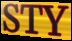
STY